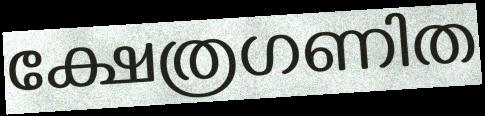
ക്ഷേത്രഗണിത